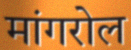
मांगरोल